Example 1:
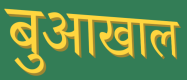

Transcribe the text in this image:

बुआखाल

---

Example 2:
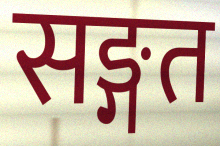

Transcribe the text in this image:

सङ्गत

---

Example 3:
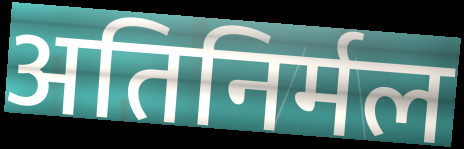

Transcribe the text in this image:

अतिनिर्मल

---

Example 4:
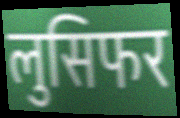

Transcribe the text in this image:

लुसिफर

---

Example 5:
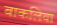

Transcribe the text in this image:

बाकलिया